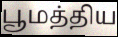
பூமத்திய